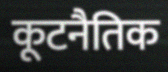
कूटनैतिक